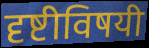
दृष्टीविषयी